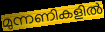
മുന്നണികളിൽ